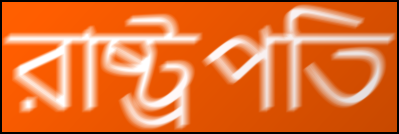
রাষ্ট্রপতি